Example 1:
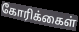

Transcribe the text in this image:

கோரிக்கைள்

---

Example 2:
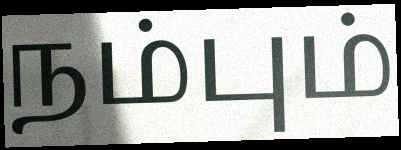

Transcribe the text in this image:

நம்பும்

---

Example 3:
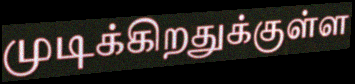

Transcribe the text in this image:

முடிக்கிறதுக்குள்ள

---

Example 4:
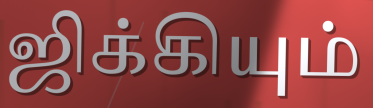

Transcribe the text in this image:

ஜிக்கியும்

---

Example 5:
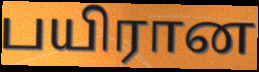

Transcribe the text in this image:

பயிரான